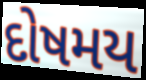
દોષમય